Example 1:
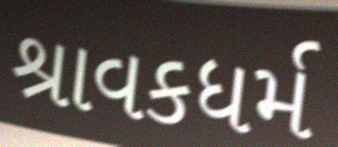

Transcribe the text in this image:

શ્રાવકધર્મ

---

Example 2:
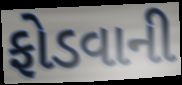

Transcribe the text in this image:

ફોડવાની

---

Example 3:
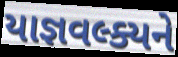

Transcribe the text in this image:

યાજ્ઞવલ્ક્યને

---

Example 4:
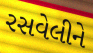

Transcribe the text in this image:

રસવેલીને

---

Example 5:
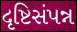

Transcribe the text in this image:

દૃષ્ટિસંપન્ન